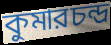
কুমারচন্দ্র